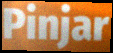
Pinjar